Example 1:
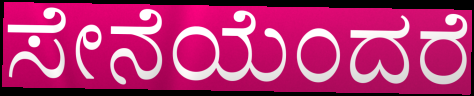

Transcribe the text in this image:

ಸೇನೆಯೆಂದರೆ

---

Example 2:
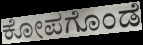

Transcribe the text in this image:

ಕೋಪಗೊಂಡೆ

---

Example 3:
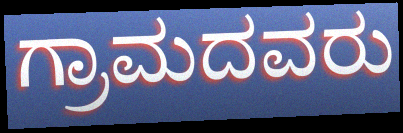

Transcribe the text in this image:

ಗ್ರಾಮದವರು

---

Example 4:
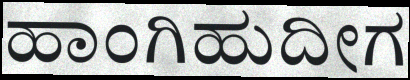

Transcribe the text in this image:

ಹಾಂಗಿಹುದೀಗ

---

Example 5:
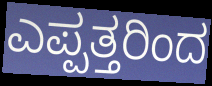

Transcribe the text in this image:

ಎಪ್ಪತ್ತರಿಂದ